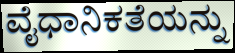
ವೈಧಾನಿಕತೆಯನ್ನು